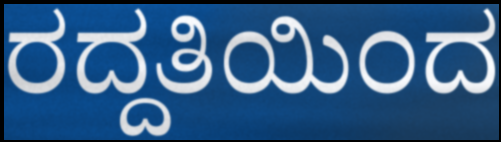
ರದ್ದತಿಯಿಂದ